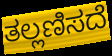
ತಲ್ಲಣಿಸದೆ